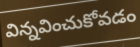
విన్నవించుకోవడం